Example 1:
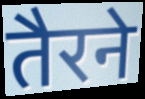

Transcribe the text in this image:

तैरने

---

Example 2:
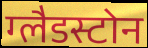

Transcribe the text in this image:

ग्लैडस्टोन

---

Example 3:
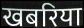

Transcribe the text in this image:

खबरिया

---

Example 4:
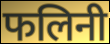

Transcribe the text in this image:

फलिनी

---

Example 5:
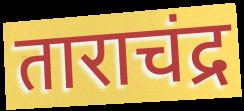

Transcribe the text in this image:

ताराचंद्र